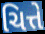
ચિત્તે